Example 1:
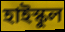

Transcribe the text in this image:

হাইস্কুল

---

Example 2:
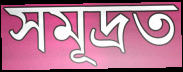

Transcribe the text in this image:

সমূদ্ৰত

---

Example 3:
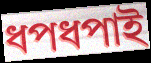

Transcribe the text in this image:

ধপধপাই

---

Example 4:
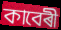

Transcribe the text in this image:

কাবেৰী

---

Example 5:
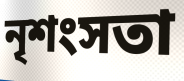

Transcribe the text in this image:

নৃশংসতা